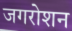
जगरोशन